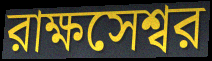
রাক্ষসেশ্বর